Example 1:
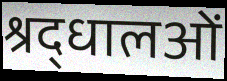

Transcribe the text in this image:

श्रद्धालओं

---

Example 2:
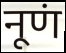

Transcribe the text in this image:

नूणं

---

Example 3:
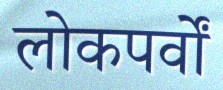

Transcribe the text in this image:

लोकपर्वों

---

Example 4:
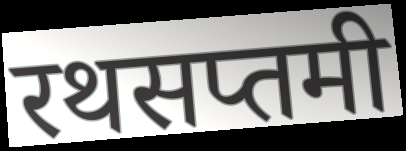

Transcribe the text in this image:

रथसप्तमी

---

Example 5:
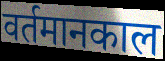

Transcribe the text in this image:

वर्तमानकाल